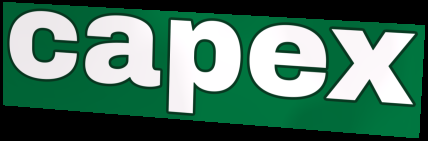
capex